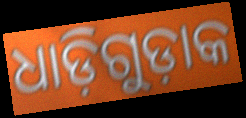
ଧାଡ଼ିଗୁଡ଼ାକ